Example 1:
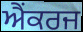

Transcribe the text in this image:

ਐਂਕਰਜ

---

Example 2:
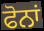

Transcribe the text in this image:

ਫੋਨਾਂ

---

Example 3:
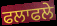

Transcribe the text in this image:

ਫਲਾਫਲੇ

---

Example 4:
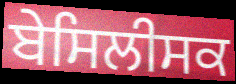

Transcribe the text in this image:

ਬੇਸਿਲੀਸਕ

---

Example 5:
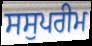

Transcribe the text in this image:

ਸਸੁਪਰੀਮ